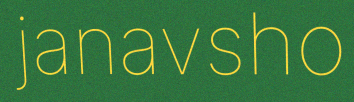
janavsho